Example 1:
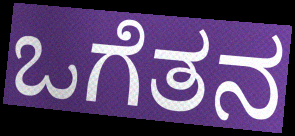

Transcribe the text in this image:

ಒಗೆತನ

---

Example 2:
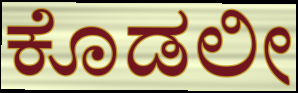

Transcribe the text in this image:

ಕೊಡಲೀ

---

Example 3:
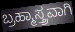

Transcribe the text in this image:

ಬ್ರಹ್ಮಾಸ್ತ್ರವಾಗಿ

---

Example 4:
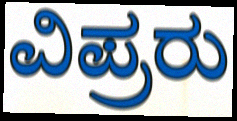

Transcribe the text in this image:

ವಿಪ್ರರು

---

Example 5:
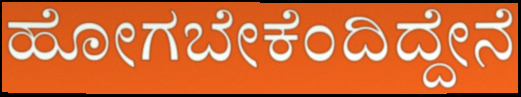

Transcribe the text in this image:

ಹೋಗಬೇಕೆಂದಿದ್ದೇನೆ